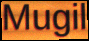
Mugil